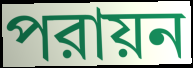
পরায়ন